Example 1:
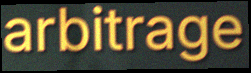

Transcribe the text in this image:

arbitrage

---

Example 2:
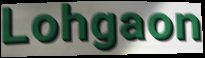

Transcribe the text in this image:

Lohgaon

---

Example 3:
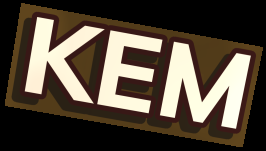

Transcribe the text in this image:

KEM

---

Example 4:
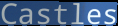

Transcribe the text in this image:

Castles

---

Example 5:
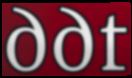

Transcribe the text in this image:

ddt